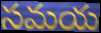
సమయ